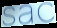
sac